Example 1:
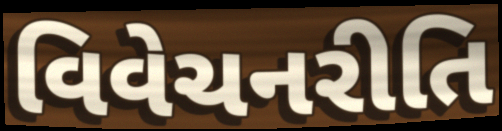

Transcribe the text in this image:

વિવેચનરીતિ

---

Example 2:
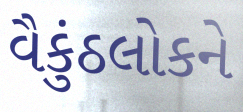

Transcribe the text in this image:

વૈકુંઠલોકને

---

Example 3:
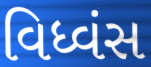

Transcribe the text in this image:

વિધ્વંસ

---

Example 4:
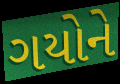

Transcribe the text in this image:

ગયોને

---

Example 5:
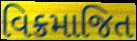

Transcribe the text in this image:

વિક્રમાજિત